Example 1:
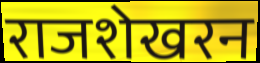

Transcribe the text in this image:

राजशेखरन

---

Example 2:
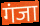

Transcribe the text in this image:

गंजा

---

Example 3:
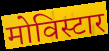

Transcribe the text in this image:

मोविस्टार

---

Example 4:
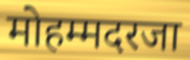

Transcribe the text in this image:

मोहम्मदरजा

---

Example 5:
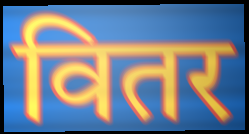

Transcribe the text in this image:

वितर